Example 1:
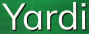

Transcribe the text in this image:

Yardi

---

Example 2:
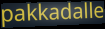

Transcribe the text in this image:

pakkadalle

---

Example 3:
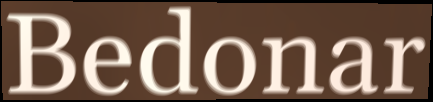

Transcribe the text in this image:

Bedonar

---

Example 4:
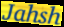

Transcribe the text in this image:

Jahsh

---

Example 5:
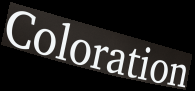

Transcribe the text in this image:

Coloration